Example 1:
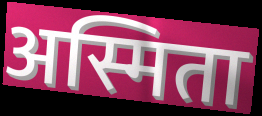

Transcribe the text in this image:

अस्मिता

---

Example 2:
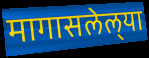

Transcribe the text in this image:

मागासलेल्या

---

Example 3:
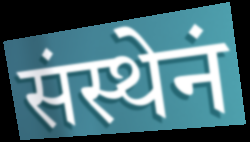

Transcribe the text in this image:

संस्थेनं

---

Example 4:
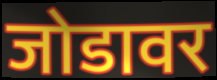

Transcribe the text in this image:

जोडावर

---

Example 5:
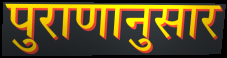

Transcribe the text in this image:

पुराणानुसार